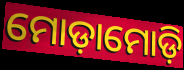
ମୋଡ଼ାମୋଡ଼ି